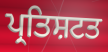
ਪ੍ਰਤਿਸ਼ਟਤ